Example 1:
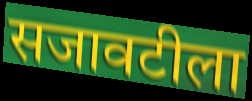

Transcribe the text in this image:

सजावटीला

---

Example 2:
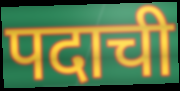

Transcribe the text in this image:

पदाची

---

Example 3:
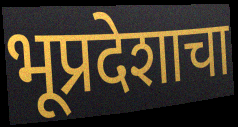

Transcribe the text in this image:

भूप्रदेशाचा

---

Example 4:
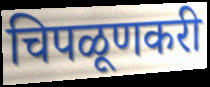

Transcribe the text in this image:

चिपळूणकरी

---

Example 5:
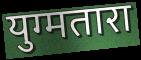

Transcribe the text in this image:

युग्मतारा